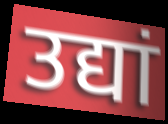
उद्यां